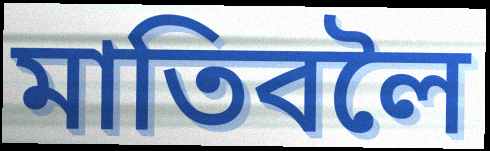
মাতিবলৈ